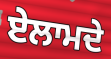
ਏਲਾਮਦੇ